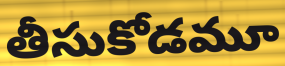
తీసుకోడమూ